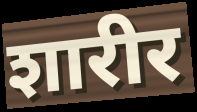
शारीर